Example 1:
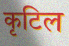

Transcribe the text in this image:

कृटिल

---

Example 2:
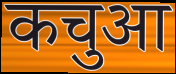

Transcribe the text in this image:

कचुआ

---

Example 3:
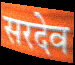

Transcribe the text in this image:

सरदेव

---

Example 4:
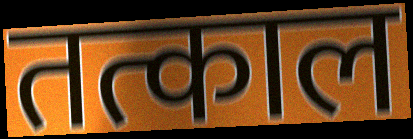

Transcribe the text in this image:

तत्‍काल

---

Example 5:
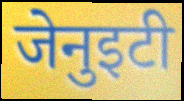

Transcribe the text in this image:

जेनुइटी